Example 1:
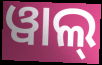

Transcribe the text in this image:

ୱାଲ୍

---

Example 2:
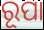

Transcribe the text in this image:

ରୂପା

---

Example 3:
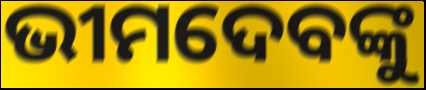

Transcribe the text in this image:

ଭୀମଦେବଙ୍କୁ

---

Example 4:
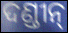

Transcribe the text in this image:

ଦଣ୍ଡୀନ୍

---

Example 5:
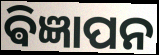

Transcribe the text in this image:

ଵିଜ୍ଞାପନ